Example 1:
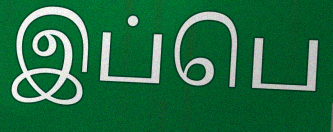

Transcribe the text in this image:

இப்பெ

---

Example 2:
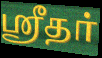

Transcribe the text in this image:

ஸ்ரீதர்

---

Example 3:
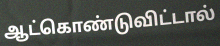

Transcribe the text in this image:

ஆட்கொண்டுவிட்டால்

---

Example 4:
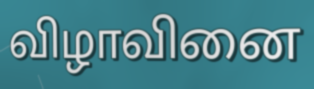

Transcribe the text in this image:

விழாவினை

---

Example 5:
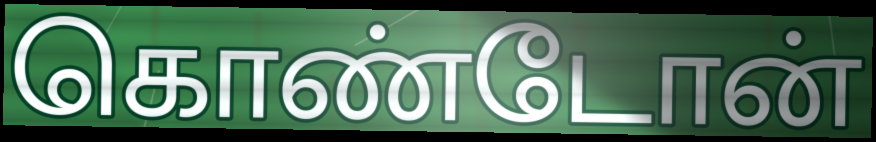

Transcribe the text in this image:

கொண்டோன்